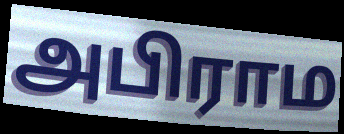
அபிராம